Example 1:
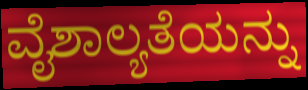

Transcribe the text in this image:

ವೈಶಾಲ್ಯತೆಯನ್ನು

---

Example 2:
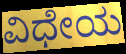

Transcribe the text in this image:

ವಿಧೇಯ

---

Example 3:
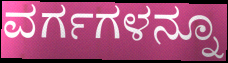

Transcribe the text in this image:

ವರ್ಗಗಳನ್ನೂ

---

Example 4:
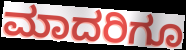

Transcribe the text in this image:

ಮಾದರಿಗೂ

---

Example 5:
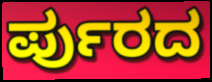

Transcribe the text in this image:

ರ್ಪುರದ